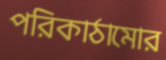
পরিকাঠামোর